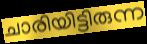
ചാരിയിട്ടിരുന്ന